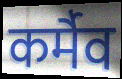
कर्मैव